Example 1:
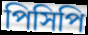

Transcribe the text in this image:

পিসিপি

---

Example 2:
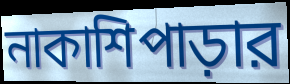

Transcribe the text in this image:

নাকাশিপাড়ার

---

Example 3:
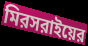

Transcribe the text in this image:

মিরসরাইয়ের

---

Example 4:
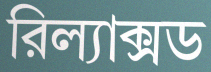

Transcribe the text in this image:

রিল্যাক্সড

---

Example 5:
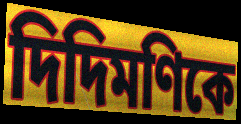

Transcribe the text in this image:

দিদিমণিকে